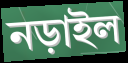
নড়াইল